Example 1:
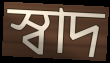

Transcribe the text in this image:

স্বাদ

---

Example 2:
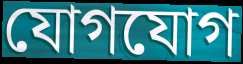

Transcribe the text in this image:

যোগযোগ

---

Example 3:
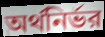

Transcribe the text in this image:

অর্থনির্ভর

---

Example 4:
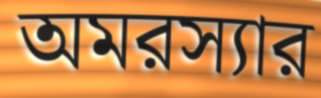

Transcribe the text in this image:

অমরস্যার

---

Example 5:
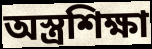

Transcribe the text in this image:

অস্ত্রশিক্ষা